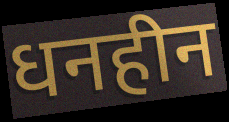
धनहीन